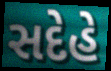
સદેહે